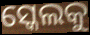
ସ୍କେଲକୁ